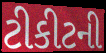
ટીકીટની